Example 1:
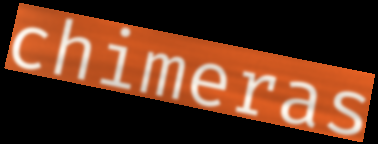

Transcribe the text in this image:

chimeras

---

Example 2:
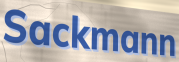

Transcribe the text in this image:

Sackmann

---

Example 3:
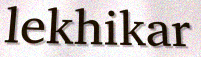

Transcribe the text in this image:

lekhikar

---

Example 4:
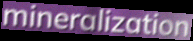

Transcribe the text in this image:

mineralization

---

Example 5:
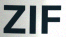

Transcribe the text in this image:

ZIF